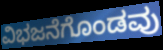
ವಿಭಜನೆಗೊಂಡವು